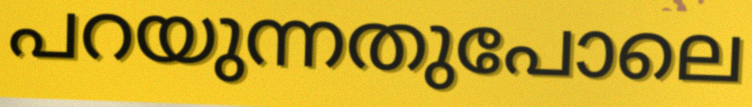
പറയുന്നതുപോലെ